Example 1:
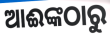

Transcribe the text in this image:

ଆଈଙ୍କଠାରୁ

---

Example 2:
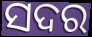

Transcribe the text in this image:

ସଦର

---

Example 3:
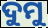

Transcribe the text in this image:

ଦୁମୁ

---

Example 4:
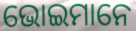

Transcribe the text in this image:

ଭୋଇମାନେ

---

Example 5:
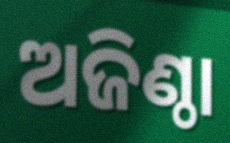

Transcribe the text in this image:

ଅଜିଣ୍ଠା